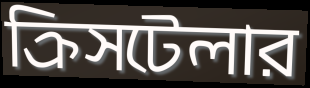
ক্রিসটেলার